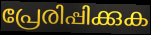
പ്രേരിപ്പിക്കുക